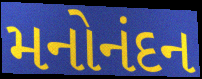
મનોનંદન